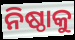
ନିଷ୍ଠାକୁ